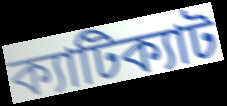
ক্যাটিক্যাট